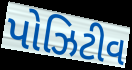
પોઝિટીવ